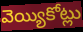
వెయ్యికోట్లు